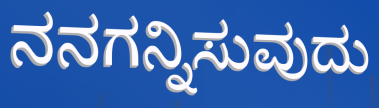
ನನಗನ್ನಿಸುವುದು